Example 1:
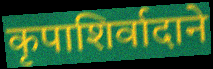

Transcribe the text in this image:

कृपाशिर्वादाने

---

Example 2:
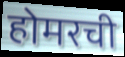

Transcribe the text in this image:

होमरची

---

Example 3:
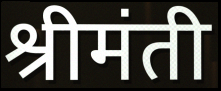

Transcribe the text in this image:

श्रीमंती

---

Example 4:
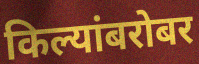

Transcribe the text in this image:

किल्यांबरोबर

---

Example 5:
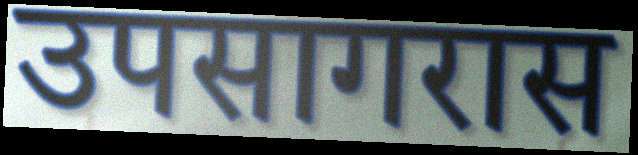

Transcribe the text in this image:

उपसागरास